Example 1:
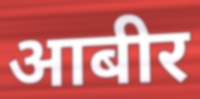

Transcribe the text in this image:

आबीर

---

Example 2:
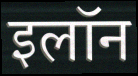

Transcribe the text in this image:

इलॉन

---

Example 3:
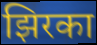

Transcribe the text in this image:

झिरका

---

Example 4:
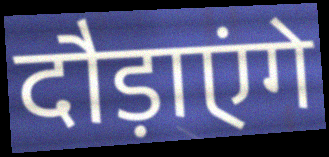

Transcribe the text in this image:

दौड़ाएंगे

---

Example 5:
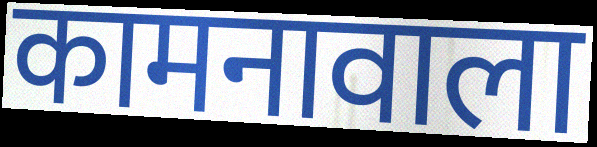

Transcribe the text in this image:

कामनावाला